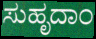
ಸುಹೃದಾಂ